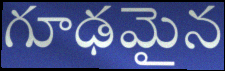
గూఢమైన